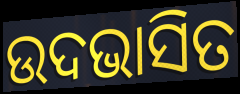
ଉଦଭାସିତ